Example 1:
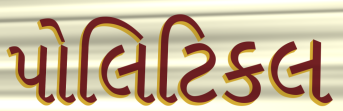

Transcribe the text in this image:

પોલિટિકલ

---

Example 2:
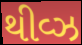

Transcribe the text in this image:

થીવ્ઝ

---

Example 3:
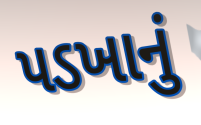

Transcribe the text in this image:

પડખાનું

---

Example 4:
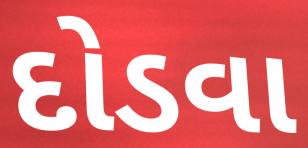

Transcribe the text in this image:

દોડવા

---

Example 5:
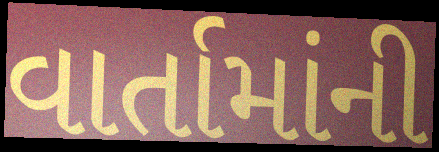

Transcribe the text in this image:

વાર્તામાંની